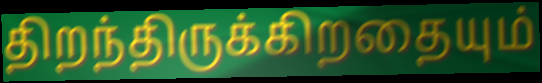
திறந்திருக்கிறதையும்